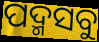
ପଦ୍ମସବୁ